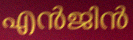
എൻജിൻ